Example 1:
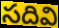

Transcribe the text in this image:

సదివి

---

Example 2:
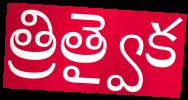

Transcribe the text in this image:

త్రిత్వైక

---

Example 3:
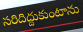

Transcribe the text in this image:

సరిదిద్దుకుంటాను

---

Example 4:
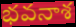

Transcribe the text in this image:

భవనాశ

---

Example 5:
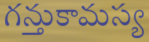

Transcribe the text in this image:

గన్తుకామస్య